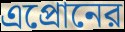
এপ্রোনের